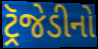
ટ્રૅજેડીનો